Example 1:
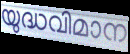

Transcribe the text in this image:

യുദ്ധവിമാന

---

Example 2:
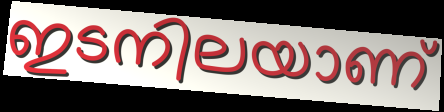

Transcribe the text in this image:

ഇടനിലയാണ്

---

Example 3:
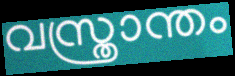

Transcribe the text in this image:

വസ്ത്രാന്തം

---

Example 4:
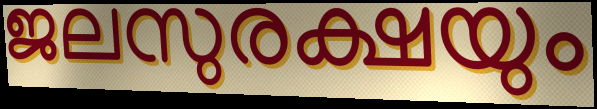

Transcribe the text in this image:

ജലസുരക്ഷയും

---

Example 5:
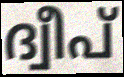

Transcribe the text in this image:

ദ്വീപ്